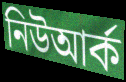
নিউআর্ক